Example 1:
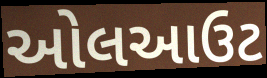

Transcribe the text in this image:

ઓલઆઉટ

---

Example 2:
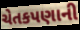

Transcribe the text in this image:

ચેતકપણાની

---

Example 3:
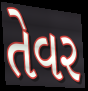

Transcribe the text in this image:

તેવર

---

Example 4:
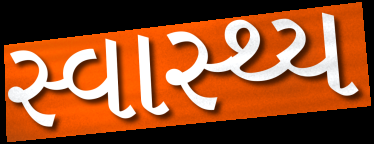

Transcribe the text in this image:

સ્વાસ્થ્ય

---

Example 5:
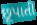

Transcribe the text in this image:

છૂપાતી